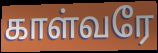
காள்வரே